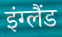
इंग्लैंड